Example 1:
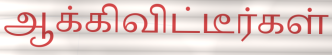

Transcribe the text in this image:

ஆக்கிவிட்டீர்கள்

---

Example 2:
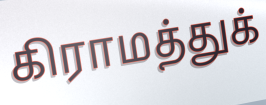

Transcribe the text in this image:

கிராமத்துக்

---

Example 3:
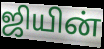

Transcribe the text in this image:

ஜியின்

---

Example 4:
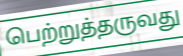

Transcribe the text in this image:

பெற்றுத்தருவது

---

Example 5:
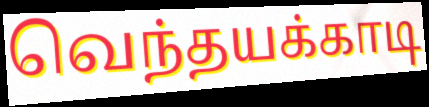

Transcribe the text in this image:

வெந்தயக்காடி